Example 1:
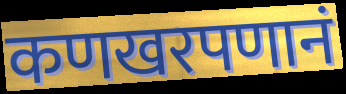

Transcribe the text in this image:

कणखरपणानं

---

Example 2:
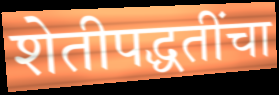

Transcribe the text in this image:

शेतीपद्धतींचा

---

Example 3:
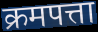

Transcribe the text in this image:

क्रमपत्ता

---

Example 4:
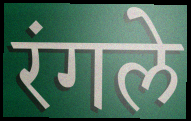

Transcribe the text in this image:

रंगले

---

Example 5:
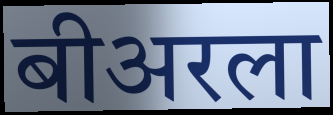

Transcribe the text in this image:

बीअरला